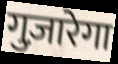
गुज़ारेगा